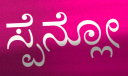
ಸ್ಪೆನ್ಲೋ